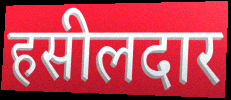
हसीलदार